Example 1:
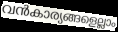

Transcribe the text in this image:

വൻകാര്യങ്ങളെല്ലാം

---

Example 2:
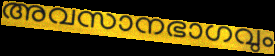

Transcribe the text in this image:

അവസാനഭാഗവും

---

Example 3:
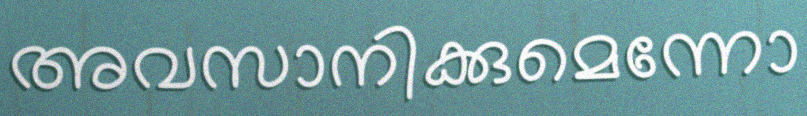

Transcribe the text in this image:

അവസാനിക്കുമെന്നോ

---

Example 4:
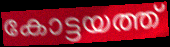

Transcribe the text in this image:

കോട്ടയത്ത്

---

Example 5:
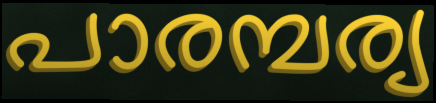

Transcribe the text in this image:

പാരമ്പര്യ